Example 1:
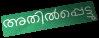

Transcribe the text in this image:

അതിൽപ്പെട്ടു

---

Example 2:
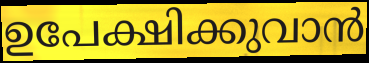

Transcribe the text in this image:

ഉപേക്ഷിക്കുവാൻ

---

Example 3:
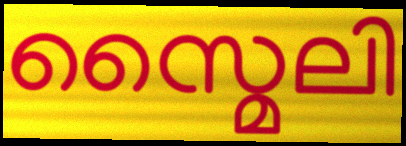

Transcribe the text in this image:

സ്മൈലി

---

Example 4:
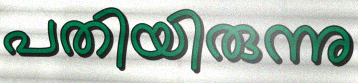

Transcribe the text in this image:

പതിയിരുന്നു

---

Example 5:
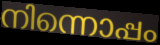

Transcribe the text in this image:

നിന്നൊപ്പം